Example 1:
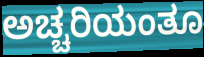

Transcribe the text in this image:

ಅಚ್ಚರಿಯಂತೂ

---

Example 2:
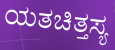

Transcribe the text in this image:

ಯತಚಿತ್ತಸ್ಯ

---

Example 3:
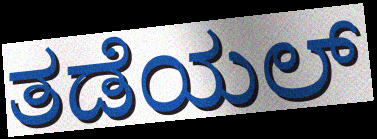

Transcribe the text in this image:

ತಡೆಯಲ್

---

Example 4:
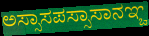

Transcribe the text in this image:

ಅಸ್ಸಾಸಪಸ್ಸಾಸಾನಞ್ಚ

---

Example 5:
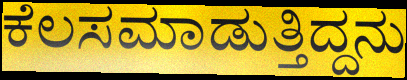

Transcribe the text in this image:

ಕೆಲಸಮಾಡುತ್ತಿದ್ದನು